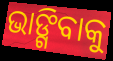
ଭାଙ୍ଗିବାକୁ